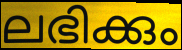
ലഭിക്കും